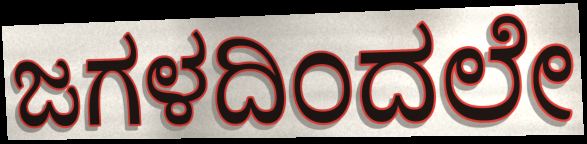
ಜಗಳದಿಂದಲೇ